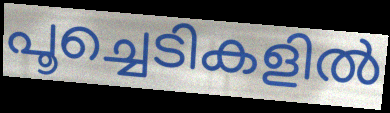
പൂച്ചെടികളിൽ